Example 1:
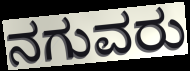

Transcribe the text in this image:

ನಗುವರು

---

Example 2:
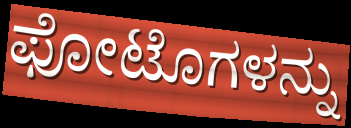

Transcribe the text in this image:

ಫೋಟೊಗಳನ್ನು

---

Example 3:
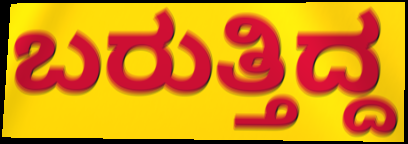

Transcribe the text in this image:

ಬರುತ್ತಿದ್ದ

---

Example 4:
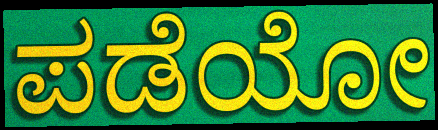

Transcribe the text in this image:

ಪಡೆಯೋ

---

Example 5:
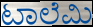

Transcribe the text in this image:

ಟಾಲೆಮಿ